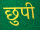
छुपी